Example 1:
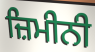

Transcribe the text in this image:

ਜ਼ਿਮੀਨੀ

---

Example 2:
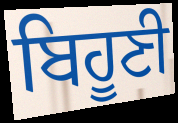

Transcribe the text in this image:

ਬਿਹੂਣੀ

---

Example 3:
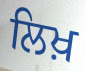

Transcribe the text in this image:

ਲਿਖ਼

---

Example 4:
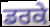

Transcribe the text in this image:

ਡਰਕੇ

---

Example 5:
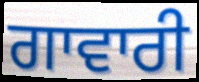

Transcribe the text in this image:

ਗਾਵਾਰੀ